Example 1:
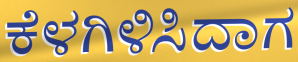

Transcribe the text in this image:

ಕೆಳಗಿಳಿಸಿದಾಗ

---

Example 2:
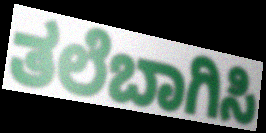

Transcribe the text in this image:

ತಲೆಬಾಗಿಸಿ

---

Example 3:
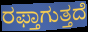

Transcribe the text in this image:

ರಫ್ತಾಗುತ್ತದೆ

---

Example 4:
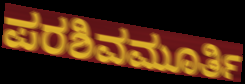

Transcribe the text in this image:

ಪರಶಿವಮೂರ್ತಿ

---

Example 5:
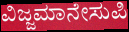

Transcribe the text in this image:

ವಿಜ್ಜಮಾನೇಸುಪಿ